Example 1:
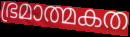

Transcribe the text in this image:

ഭ്രമാത്മകത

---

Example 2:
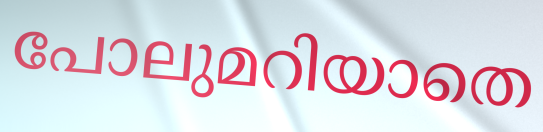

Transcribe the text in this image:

പോലുമറിയാതെ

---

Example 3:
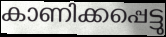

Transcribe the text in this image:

കാണിക്കപ്പെട്ടു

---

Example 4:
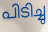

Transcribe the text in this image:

പിടിച്ചു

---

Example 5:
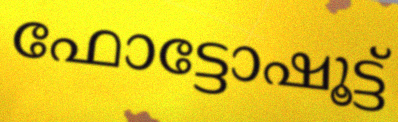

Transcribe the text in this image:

ഫോട്ടോഷൂട്ട്